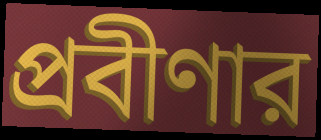
প্রবীণার